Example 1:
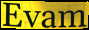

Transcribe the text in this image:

Evam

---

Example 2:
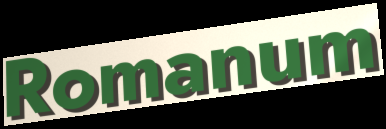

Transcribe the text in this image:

Romanum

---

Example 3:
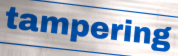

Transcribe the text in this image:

tampering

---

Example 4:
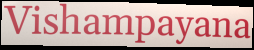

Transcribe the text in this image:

Vishampayana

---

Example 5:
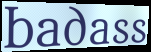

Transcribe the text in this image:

badass